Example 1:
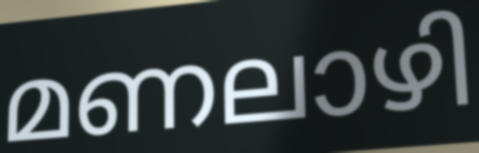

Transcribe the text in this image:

മണലാഴി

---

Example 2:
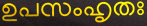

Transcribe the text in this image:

ഉപസംഹൃതഃ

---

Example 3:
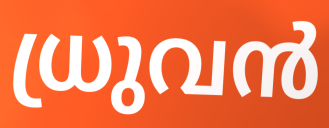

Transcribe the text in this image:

ധ്രുവൻ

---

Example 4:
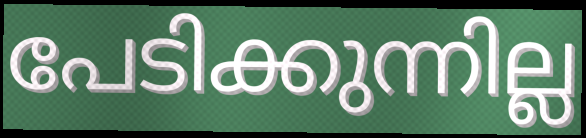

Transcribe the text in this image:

പേടിക്കുന്നില്ല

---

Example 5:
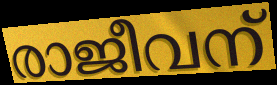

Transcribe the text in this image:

രാജീവന്